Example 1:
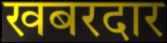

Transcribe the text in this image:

खबरदार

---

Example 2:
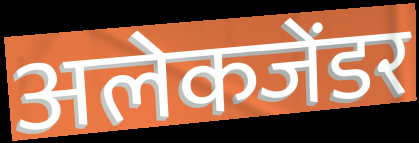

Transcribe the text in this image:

अलेकजेंडर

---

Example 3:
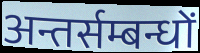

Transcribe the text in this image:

अन्तर्सम्बन्धों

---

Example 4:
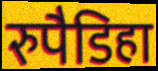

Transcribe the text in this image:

रुपैडिहा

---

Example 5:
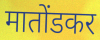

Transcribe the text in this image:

मातोंडकर